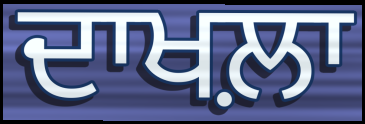
ਦਾਖਲ਼ਾ